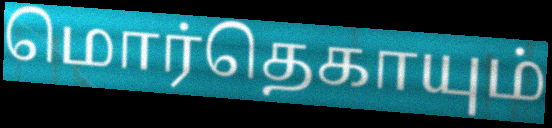
மொர்தெகாயும்